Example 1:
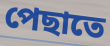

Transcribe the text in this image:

পেছাতে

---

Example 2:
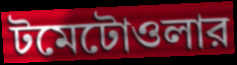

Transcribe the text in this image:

টমেটোওলার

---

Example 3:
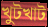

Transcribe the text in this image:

খুটখাট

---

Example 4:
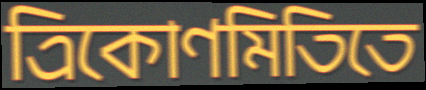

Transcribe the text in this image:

ত্রিকোণমিতিতে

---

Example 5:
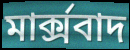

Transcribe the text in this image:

মার্ক্সবাদ